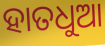
ହାତଧୁଆ